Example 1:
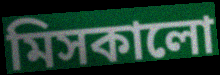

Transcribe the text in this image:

মিসকালো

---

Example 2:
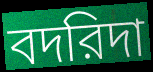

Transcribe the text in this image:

বদরিদা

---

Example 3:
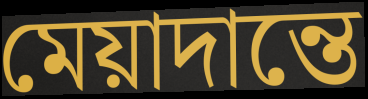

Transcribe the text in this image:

মেয়াদান্তে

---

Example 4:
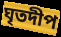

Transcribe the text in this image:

ঘৃতদীপ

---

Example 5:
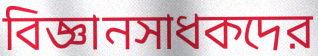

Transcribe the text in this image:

বিজ্ঞানসাধকদের